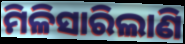
ମିଳିସାରିଲାଣି